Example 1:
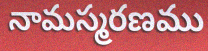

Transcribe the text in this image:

నామస్మరణము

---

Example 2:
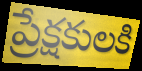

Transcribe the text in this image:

ప్రేక్షకులకి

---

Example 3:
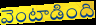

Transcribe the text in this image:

వెంటాడింది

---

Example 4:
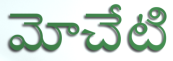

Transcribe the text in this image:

మోచేటి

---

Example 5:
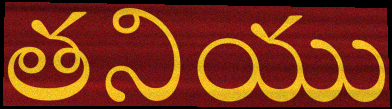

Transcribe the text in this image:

తనియు